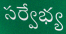
సర్వేభ్య